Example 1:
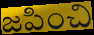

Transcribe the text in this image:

జపించి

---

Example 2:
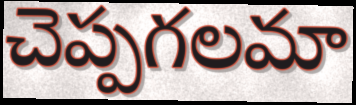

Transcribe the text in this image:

చెప్పగలమా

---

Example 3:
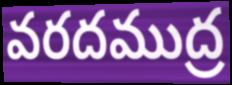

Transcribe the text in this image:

వరదముద్ర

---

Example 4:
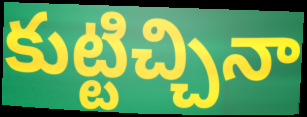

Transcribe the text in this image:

కుట్టిచ్చినా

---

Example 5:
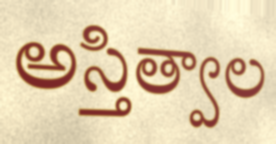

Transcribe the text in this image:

అస్తిత్వాల